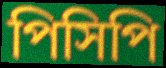
পিসিপি